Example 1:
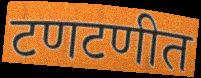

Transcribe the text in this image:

टणटणीत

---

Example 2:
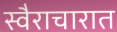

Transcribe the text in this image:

स्वैराचारात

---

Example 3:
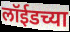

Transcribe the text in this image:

लॉईडच्या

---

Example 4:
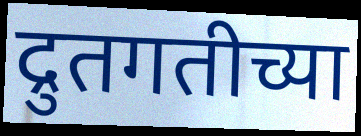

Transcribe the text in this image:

द्रुतगतीच्या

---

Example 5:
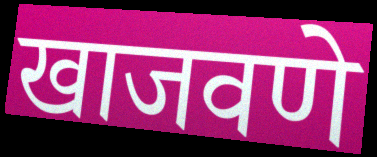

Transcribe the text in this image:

खाजवणे